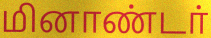
மினாண்டர்